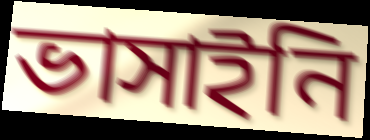
ভাসাইনি